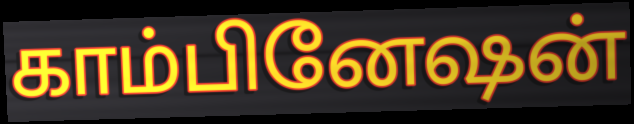
காம்பினேஷன்